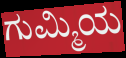
ಗುಮ್ಮಿಯ